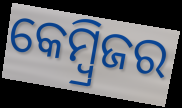
କେମ୍ୱ୍ରିଜର